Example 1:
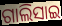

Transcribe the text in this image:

ଗାଲିସାଇ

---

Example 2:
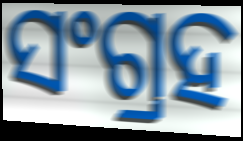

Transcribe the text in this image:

ସଂଗ୍ରହ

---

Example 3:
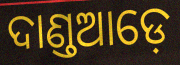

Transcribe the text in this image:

ଦାଣ୍ଡଆଡ଼େ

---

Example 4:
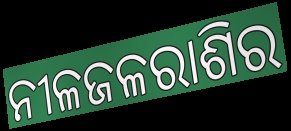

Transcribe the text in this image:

ନୀଳଜଳରାଶିର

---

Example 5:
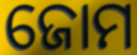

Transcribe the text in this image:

ଜୋମ